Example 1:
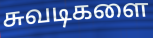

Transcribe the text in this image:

சுவடிகளை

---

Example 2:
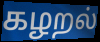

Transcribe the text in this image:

கழறல்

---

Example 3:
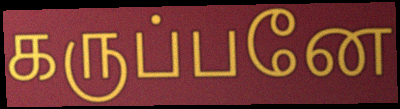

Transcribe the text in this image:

கருப்பனே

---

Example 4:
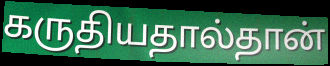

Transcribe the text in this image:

கருதியதால்தான்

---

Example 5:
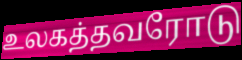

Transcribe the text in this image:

உலகத்தவரோடு